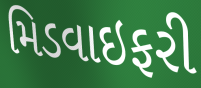
મિડવાઇફરી